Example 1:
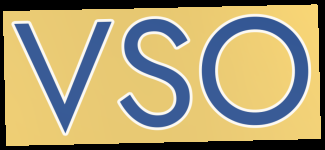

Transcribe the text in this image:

VSO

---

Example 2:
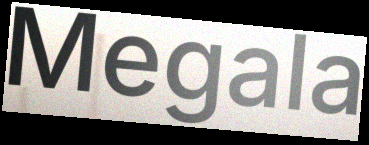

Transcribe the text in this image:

Megala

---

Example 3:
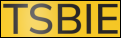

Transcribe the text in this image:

TSBIE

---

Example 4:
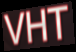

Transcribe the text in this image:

VHT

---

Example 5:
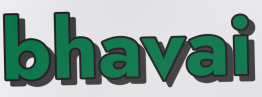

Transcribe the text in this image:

bhavai